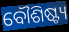
ବୌଶିଷ୍ଟ୍ୟ